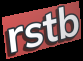
rstb